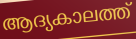
ആദ്യകാലത്ത്